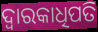
ଦ୍ୱାରକାଧିପତି